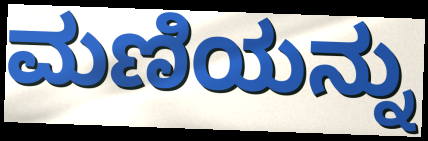
ಮಣಿಯನ್ನು